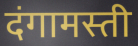
दंगामस्ती